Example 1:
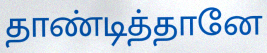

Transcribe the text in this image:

தாண்டித்தானே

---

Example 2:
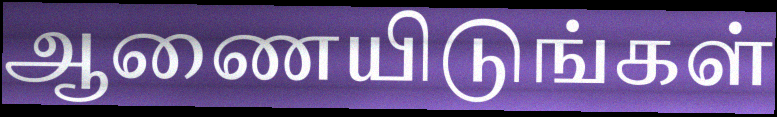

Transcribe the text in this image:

ஆணையிடுங்கள்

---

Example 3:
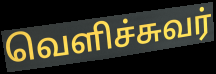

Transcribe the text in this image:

வெளிச்சுவர்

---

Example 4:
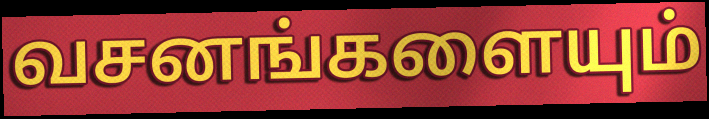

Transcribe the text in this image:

வசனங்களையும்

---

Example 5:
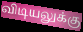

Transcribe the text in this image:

விடியலுக்கு